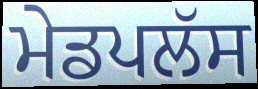
ਮੇਡਪਲੱਸ